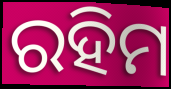
ରହିମ